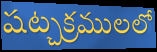
షట్చక్రములలో